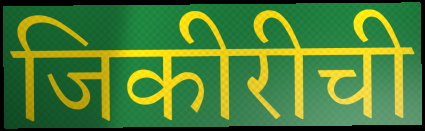
जिकीरीची